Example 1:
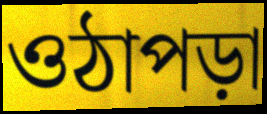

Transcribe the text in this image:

ওঠাপড়া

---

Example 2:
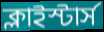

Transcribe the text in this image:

ক্লাইস্টার্স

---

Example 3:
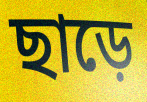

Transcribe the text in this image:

ছাড়ে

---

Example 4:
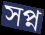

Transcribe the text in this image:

সপ্ন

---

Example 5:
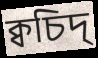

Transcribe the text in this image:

ক্বচিদ্